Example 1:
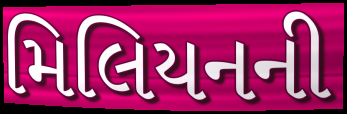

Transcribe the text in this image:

મિલિયનની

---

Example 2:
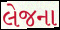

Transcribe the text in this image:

લેજના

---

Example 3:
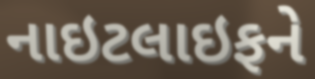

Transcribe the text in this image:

નાઇટલાઇફને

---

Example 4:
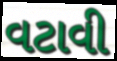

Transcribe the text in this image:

વટાવી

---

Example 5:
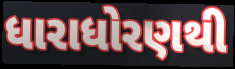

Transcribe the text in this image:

ધારાધોરણથી